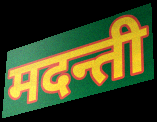
मदन्ती